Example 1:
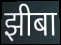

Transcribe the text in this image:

झीबा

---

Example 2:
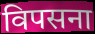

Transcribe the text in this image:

विपसना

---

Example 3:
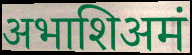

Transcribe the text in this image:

अभाशिअमं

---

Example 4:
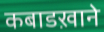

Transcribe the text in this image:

कबाडख़ाने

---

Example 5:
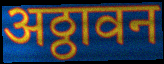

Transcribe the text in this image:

अठ्ठावन